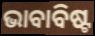
ଭାବାବିଷ୍ଟ